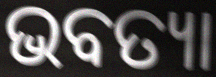
ଭବତ୍ୟା